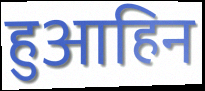
हुआहिन